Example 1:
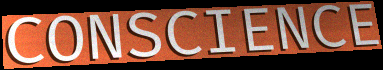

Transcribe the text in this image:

CONSCIENCE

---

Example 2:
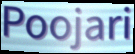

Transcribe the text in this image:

Poojari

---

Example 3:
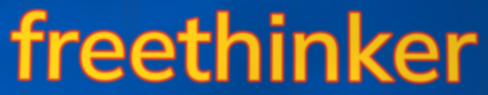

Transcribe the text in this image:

freethinker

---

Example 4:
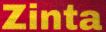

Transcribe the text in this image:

Zinta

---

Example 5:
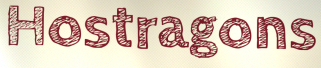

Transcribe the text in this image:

Hostragons